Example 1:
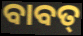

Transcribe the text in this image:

ବାବତ୍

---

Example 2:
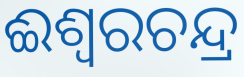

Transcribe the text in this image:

ଈଶ୍ୱରଚନ୍ଦ୍ର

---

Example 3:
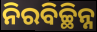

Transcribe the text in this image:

ନିରବିଚ୍ଛିନ୍ନ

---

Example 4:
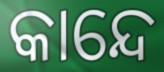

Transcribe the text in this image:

କାନ୍ଦେ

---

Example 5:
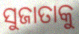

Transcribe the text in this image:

ସୁଜାତାକୁ